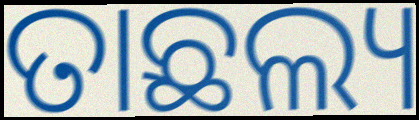
ତାଛଲ୍ୟ